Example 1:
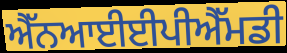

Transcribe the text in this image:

ਐੱਨਆਈਈਪੀਐੱਮਡੀ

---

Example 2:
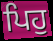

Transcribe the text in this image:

ਪਿਹੁ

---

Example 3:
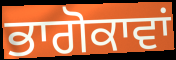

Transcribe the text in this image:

ਭਾਗੋਕਾਵਾਂ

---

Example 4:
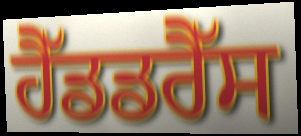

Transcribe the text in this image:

ਹੈੱਡਡਰੈੱਸ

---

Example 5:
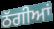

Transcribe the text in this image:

ਠੱਗੀਆਂ